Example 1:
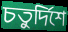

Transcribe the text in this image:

চতুৰ্দিশে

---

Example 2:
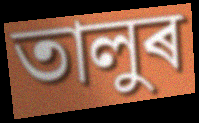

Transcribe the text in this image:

তালুৰ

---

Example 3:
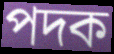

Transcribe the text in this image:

পদক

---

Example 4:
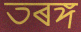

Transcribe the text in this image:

তৰঙ্গ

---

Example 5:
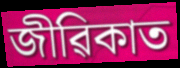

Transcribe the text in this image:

জীৱিকাত